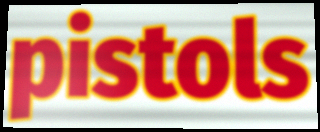
pistols